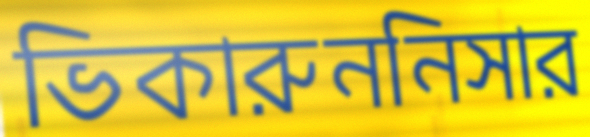
ভিকারুননিসার